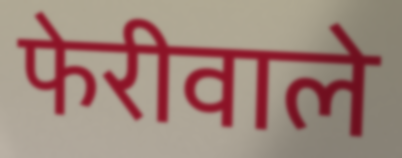
फेरीवाले